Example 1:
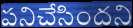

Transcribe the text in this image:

పనిచేసిందని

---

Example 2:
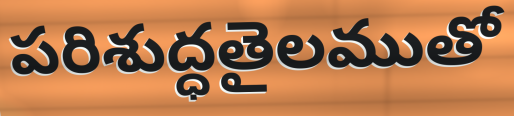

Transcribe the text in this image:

పరిశుద్ధతైలముతో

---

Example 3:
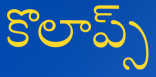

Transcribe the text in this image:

కొలాప్స్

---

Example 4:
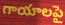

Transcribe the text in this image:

గాయాలపై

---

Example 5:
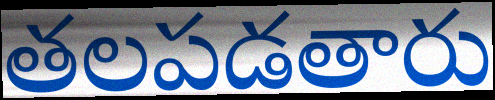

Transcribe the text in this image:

తలపడతారు